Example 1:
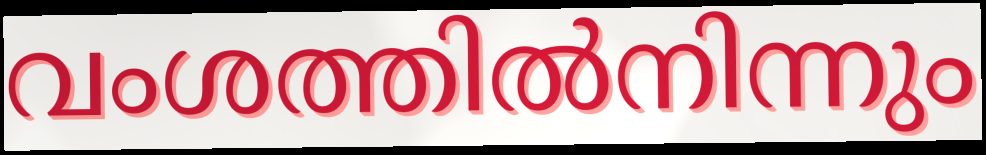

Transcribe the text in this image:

വംശത്തിൽനിന്നും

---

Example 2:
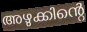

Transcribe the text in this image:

അഴുക്കിന്റെ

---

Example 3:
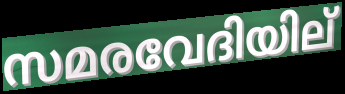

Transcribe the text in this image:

സമരവേദിയില്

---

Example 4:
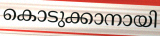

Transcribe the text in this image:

കൊടുക്കാനായി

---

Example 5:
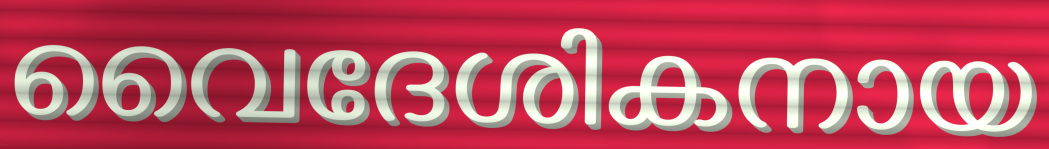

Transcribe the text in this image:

വൈദേശികനായ